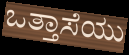
ಒತ್ತಾಸೆಯು